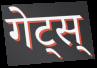
गेट्स्